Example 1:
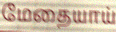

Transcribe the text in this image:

மேதையாய்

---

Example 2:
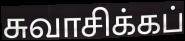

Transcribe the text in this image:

சுவாசிக்கப்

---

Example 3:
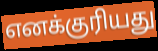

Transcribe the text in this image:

எனக்குரியது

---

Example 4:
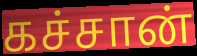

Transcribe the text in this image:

கச்சான்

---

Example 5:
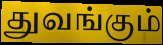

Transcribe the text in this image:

துவங்கும்